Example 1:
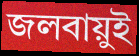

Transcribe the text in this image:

জলবায়ুই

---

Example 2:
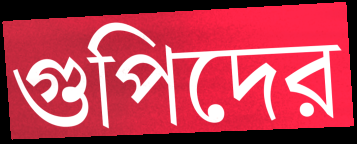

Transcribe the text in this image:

গুপিদের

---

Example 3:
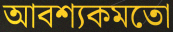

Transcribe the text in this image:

আবশ্যকমতো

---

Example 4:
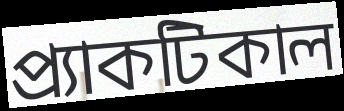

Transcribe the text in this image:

প্র্যাকটিকাল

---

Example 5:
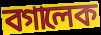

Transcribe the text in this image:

বগালেক